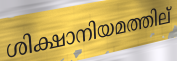
ശിക്ഷാനിയമത്തില്